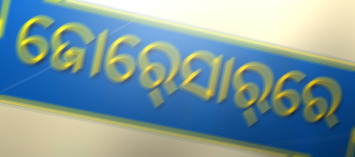
ଜୋର୍‍ସୋର୍‌ରେ